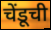
चेंडूची